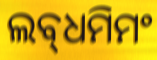
ଲବ୍‌ଧମିମଂ